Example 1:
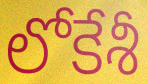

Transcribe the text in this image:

లోకేశీ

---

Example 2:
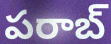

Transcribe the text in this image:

పరాబ్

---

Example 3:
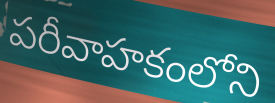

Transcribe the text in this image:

పరీవాహకంలోని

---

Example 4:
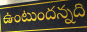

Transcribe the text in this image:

ఉంటుందన్నది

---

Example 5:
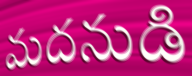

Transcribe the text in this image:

మదనుడి